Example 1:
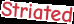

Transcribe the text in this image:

Striated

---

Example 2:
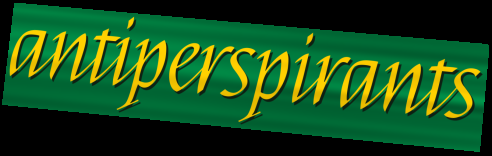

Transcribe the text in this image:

antiperspirants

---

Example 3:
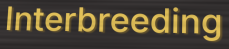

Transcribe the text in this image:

Interbreeding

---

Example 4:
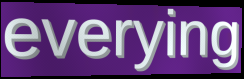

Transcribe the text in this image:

everying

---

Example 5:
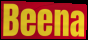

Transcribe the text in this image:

Beena